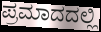
ಪ್ರಮಾದದಲ್ಲಿ